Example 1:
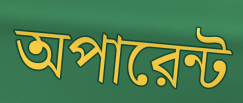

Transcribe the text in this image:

অপারেন্ট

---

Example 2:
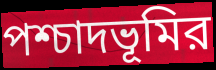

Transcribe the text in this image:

পশ্চাদভূমির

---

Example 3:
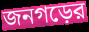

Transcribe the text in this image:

জনগড়ের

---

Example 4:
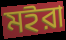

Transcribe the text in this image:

মইরা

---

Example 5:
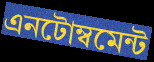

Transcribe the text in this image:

এনটোম্বমেন্ট